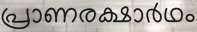
പ്രാണരക്ഷാർഥം